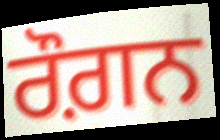
ਰੌਗ਼ਨ